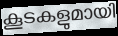
കൂടകളുമായി